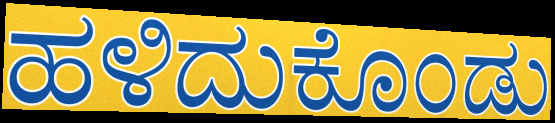
ಹಳಿದುಕೊಂಡು